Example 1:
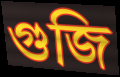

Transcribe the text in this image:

গুজি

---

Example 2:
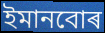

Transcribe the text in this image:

ইমানবোৰ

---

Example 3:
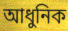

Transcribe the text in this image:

আধুনিক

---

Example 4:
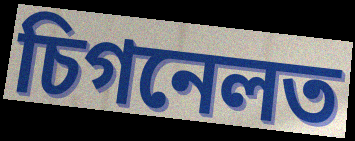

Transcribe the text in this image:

চিগনেলত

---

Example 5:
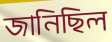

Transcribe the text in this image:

জানিছিল